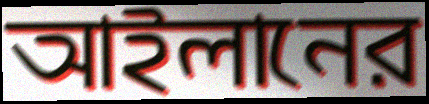
আইলানের